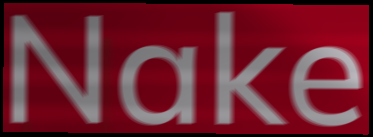
Nake